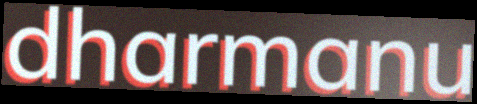
dharmanu